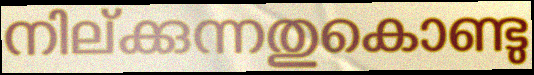
നില്ക്കുന്നതുകൊണ്ടു